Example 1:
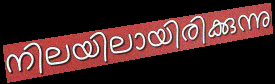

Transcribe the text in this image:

നിലയിലായിരിക്കുന്നു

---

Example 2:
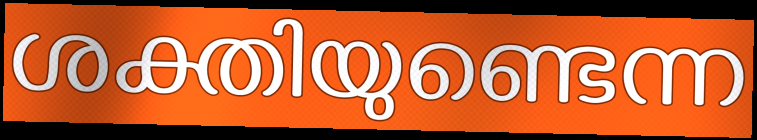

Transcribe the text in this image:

ശക്തിയുണ്ടെന്ന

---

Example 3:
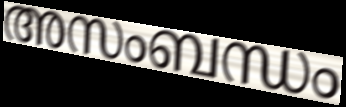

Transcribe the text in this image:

അസംബന്ധം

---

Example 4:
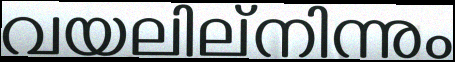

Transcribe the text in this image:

വയലില്നിന്നും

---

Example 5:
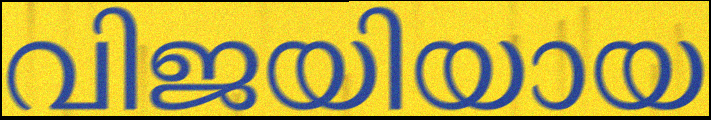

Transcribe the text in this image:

വിജയിയായ